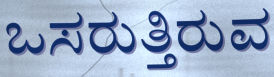
ಒಸರುತ್ತಿರುವ